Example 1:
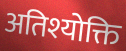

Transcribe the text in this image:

अतिश्योक्ति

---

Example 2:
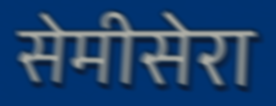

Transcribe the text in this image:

सेमीसेरा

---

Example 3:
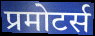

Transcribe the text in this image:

प्रमोटर्स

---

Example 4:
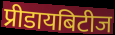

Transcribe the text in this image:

प्रीडायबिटीज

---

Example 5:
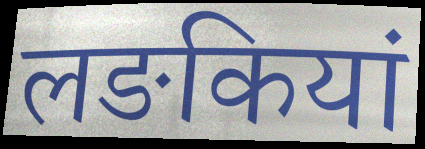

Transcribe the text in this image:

लङकियां